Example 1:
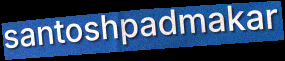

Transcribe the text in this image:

santoshpadmakar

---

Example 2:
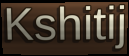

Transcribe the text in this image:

Kshitij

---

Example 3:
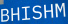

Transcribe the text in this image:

BHISHM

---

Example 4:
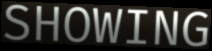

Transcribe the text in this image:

SHOWING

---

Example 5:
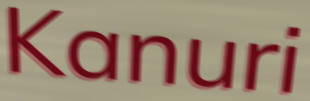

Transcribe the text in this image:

Kanuri